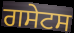
ਗਸੇਟਸ